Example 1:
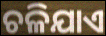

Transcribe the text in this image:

ଚଳିଯାଏ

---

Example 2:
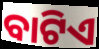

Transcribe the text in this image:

ବାଟିଏ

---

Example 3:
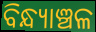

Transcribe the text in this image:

ବିନ୍ଧ୍ୟାଞ୍ଚଳ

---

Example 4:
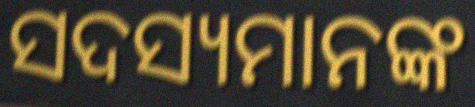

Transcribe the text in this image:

ସଦସ୍ୟମାନଙ୍କ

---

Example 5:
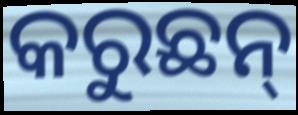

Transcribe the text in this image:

କରୁଛନ୍